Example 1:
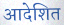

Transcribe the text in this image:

आदेशित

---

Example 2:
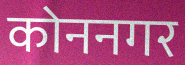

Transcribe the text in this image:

कोननगर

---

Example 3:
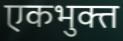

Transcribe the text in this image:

एकभुक्त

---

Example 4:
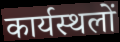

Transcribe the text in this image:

कार्यस्थलों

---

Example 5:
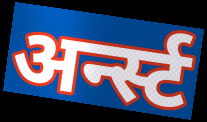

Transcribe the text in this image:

अर्न्स्ट